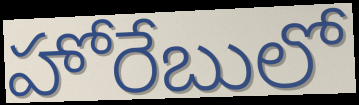
హోరేబులో